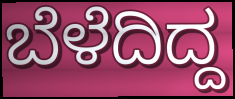
ಬೆಳೆದಿದ್ದ